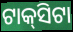
ଟାକ୍‌ସିଟା